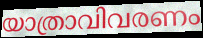
യാത്രാവിവരണം